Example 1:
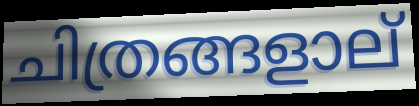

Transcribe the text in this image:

ചിത്രങ്ങളാല്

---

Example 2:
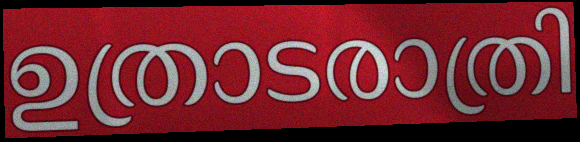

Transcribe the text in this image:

ഉത്രാടരാത്രി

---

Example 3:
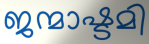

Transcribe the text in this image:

ജന്മാഷ്ടമി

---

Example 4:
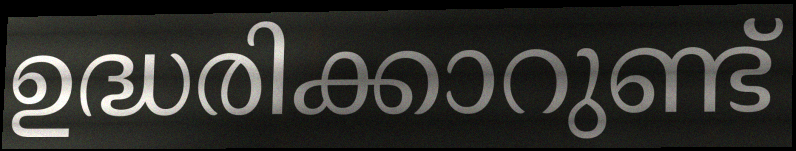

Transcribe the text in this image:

ഉദ്ധരിക്കാറുണ്ട്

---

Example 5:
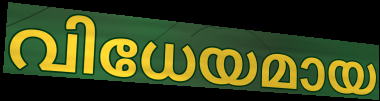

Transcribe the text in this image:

വിധേയമായ